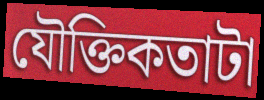
যৌক্তিকতাটা